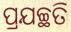
ପ୍ରଯଚ୍ଛତି